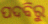
ପଦବିରୁ